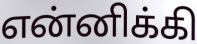
என்னிக்கி